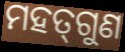
ମହତ୍‍ଗୁଣ